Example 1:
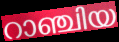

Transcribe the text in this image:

റാഞ്ചിയ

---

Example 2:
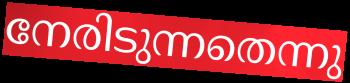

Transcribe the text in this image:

നേരിടുന്നതെന്നു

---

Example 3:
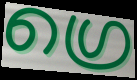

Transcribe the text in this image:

ഗ്രെ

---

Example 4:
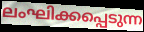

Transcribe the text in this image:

ലംഘിക്കപ്പെടുന്ന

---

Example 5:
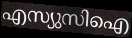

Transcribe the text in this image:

എസ്യുസിഐ